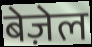
बेज़ेल